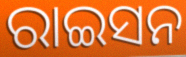
ରାଇସନ